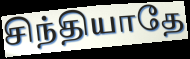
சிந்தியாதே